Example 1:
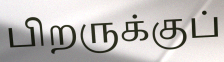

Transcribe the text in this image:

பிறருக்குப்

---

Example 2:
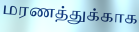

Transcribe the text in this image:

மரணத்துக்காக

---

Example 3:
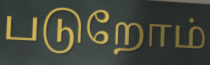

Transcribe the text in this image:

படுறோம்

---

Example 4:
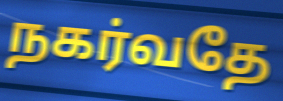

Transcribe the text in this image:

நகர்வதே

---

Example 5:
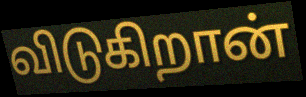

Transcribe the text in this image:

விடுகிறான்